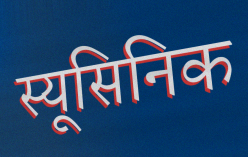
स्यूसिनिक